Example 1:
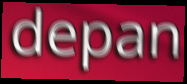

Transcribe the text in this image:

depan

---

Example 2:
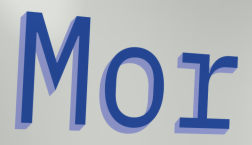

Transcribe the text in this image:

Mor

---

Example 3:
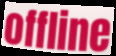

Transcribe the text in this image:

offline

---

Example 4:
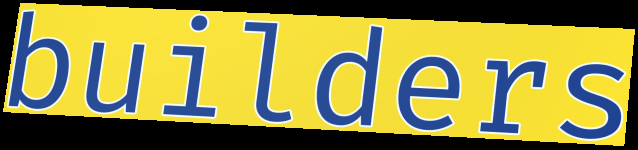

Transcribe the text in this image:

builders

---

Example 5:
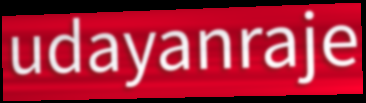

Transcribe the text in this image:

udayanraje